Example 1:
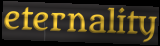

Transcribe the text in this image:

eternality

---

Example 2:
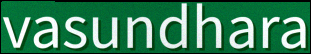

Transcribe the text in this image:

vasundhara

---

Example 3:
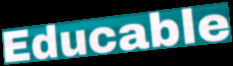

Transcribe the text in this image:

Educable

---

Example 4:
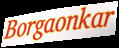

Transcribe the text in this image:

Borgaonkar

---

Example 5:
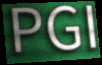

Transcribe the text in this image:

PGI